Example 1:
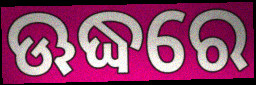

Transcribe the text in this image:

ଊଦ୍ଧରେ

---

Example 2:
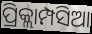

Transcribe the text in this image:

ପ୍ରିକ୍ଲାମ୍ପସିଆ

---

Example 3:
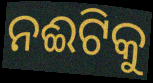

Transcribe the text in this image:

ନଈଟିକୁ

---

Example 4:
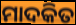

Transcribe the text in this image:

ମାଦକିତ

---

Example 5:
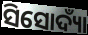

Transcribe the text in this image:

ସିସୋଦ୍ୟାଁ